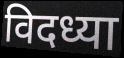
विदध्या